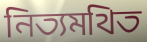
নিত্যমথিত